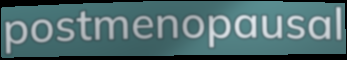
postmenopausal